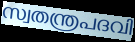
സ്വതന്ത്രപദവി